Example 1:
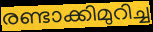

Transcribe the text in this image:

രണ്ടാക്കിമുറിച്ച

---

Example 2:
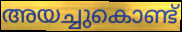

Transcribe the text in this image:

അയച്ചുകൊണ്ട്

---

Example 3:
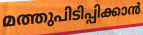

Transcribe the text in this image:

മത്തുപിടിപ്പിക്കാൻ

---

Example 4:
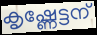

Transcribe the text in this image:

കൃഷ്ണേട്ടന്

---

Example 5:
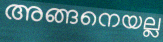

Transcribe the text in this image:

അങ്ങനെയല്ല